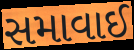
સમાવાઈ